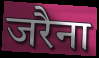
जरैना